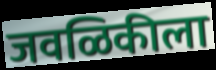
जवळिकीला